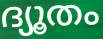
ദ്യൂതം